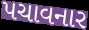
પચાવનાર